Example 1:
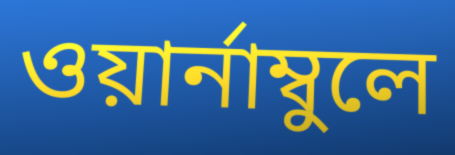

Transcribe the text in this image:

ওয়ার্নাম্বুলে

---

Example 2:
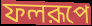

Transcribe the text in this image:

ফলরূপে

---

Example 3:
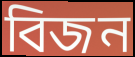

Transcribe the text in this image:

বিজন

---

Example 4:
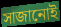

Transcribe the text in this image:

সাজানোই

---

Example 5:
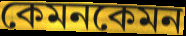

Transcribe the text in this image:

কেমনকেমন